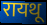
रायथू